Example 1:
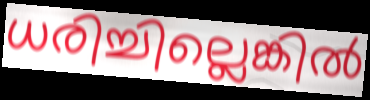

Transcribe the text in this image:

ധരിച്ചില്ലെങ്കിൽ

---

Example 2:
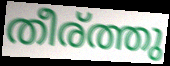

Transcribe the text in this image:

തീര്ത്തു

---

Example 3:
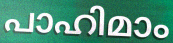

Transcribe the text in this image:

പാഹിമാം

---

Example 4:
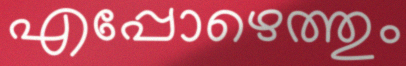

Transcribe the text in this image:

എപ്പോഴെത്തും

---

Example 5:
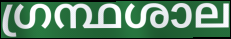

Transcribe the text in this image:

ഗ്രന്ഥശാല